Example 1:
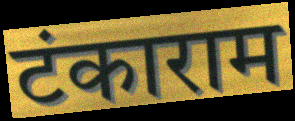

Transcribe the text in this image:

टंकाराम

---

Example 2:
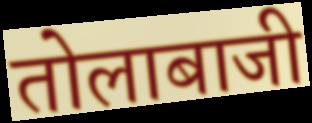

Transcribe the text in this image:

तोलाबाजी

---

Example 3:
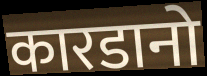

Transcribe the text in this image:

कारडानो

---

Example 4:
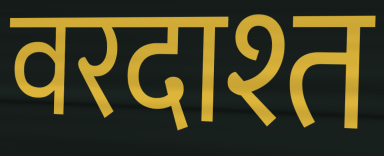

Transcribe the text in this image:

वरदाश्त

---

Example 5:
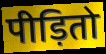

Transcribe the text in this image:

पीड़ितो